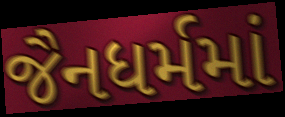
જૈનધર્મમાં